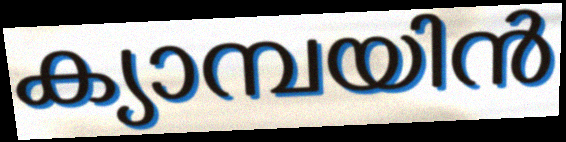
ക്യാമ്പയിൻ